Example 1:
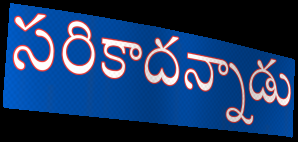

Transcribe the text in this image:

సరికాదన్నాడు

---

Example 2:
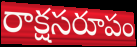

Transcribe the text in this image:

రాక్షసరూపం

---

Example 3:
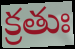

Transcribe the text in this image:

క్రతుః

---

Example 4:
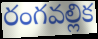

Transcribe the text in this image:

రంగవల్లిక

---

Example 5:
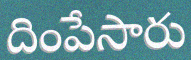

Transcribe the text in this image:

దింపేసారు